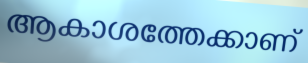
ആകാശത്തേക്കാണ്